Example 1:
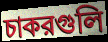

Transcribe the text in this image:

চাকরগুলি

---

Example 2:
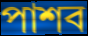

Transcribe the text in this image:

পাশব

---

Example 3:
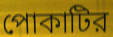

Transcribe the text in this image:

পোকাটির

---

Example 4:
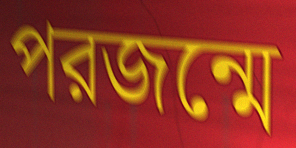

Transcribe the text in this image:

পরজন্মে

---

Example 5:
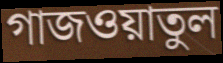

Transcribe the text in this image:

গাজওয়াতুল